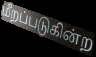
மீறப்படுகின்ற